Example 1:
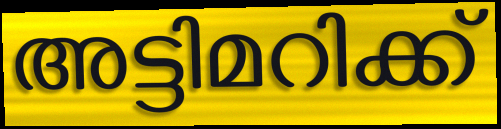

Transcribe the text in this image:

അട്ടിമറിക്ക്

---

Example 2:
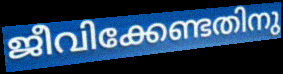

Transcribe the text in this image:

ജീവിക്കേണ്ടതിനു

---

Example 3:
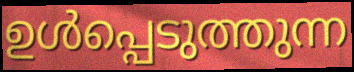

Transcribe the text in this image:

ഉൾപ്പെടുത്തുന്ന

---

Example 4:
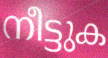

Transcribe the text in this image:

നീട്ടുക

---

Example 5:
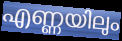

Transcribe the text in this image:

എണ്ണയിലും